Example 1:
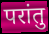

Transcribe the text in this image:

परांतु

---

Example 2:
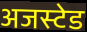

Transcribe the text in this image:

अजस्टेड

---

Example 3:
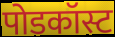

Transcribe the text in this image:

पोडकॉस्ट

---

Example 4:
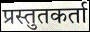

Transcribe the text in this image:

प्रस्तुतकर्ता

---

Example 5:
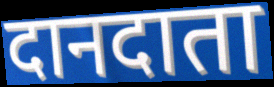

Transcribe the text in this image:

दानदाता